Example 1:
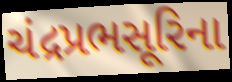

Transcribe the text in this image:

ચંદ્રપ્રભસૂરિના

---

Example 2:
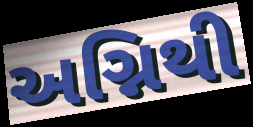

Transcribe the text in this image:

અગ્નિથી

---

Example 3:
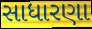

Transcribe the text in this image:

સાધારણા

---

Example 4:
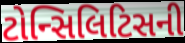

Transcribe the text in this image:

ટોન્સિલિટિસની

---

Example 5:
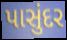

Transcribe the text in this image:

પાસુંદર